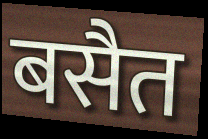
बसैत